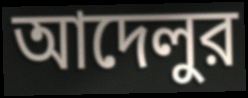
আদেলুর